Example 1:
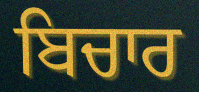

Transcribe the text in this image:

ਬਿਚਾਰ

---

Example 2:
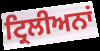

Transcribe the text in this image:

ਟ੍ਰਿਲੀਅਨਾਂ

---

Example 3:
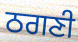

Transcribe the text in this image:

ਠਗਣੀ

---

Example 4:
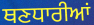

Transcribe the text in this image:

ਥਣਧਾਰੀਆਂ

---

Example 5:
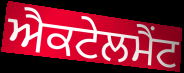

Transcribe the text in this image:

ਐਕਟੇਲਮੈਂਟ